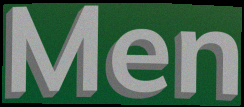
Men